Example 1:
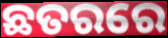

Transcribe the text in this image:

ଛତରରେ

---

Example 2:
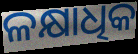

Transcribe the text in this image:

ଳକ୍ଷାଧିକ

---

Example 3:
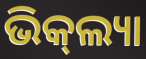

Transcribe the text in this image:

ଭିକ୍‌ଲ୍ୟା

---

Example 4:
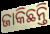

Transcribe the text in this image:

ଜାକିଛନ୍ତି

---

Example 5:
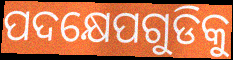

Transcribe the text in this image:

ପଦକ୍ଷେପଗୁଡିକୁ